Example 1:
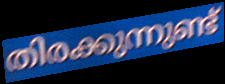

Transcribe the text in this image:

തിരക്കുന്നുണ്ട്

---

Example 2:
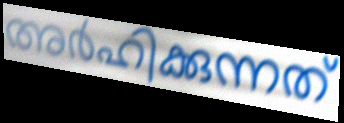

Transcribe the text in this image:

അർഹിക്കുന്നത്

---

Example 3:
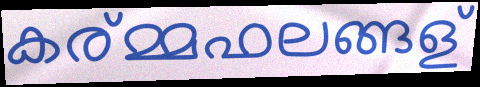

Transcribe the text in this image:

കര്മ്മഫലങ്ങള്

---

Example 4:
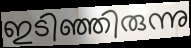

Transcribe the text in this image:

ഇടിഞ്ഞിരുന്നു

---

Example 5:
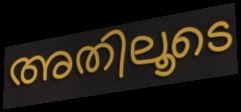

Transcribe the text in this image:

അതിലൂടെ